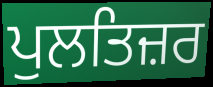
ਪੁਲਤਿਜ਼ਰ